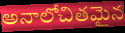
అనాలోచితమైన